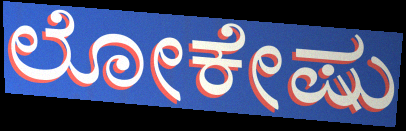
ಲೋಕೇಷು